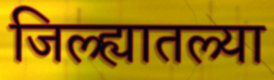
जिल्ह्यातल्या